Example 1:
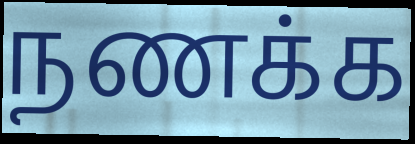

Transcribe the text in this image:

நணக்க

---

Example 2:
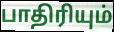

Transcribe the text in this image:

பாதிரியும்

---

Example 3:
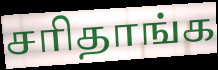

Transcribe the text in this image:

சரிதாங்க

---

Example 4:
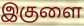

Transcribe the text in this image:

இகுளை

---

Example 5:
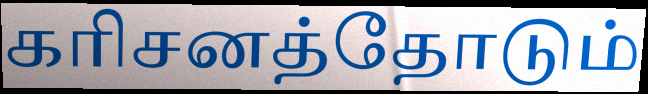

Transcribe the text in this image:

கரிசனத்தோடும்